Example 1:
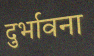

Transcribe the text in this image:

दुर्भावना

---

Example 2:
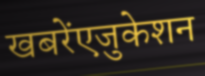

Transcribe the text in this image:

खबरेंएजुकेशन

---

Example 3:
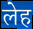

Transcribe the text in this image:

लेह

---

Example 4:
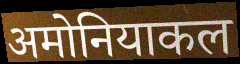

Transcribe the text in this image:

अमोनियाकल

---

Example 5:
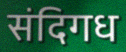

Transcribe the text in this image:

संदिगध